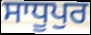
ਸਾਧੂਪੁਰ